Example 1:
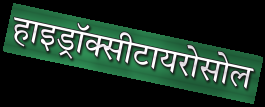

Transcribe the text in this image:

हाइड्रॉक्सीटायरोसोल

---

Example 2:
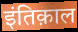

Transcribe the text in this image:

इंतिक़ाल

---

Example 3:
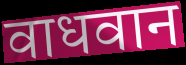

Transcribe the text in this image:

वाधवान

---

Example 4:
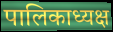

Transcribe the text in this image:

पालिकाध्यक्ष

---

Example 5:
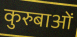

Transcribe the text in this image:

कुरुबाओं